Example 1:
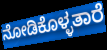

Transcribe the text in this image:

ನೋಡಿಕೊಳ್ಳತಾರೆ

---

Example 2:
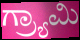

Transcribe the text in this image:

ಗ್ರ್ಯಾಮಿ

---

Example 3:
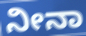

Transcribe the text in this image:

ನೀನಾ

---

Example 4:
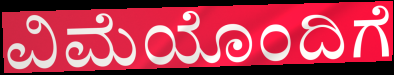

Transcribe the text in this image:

ವಿಮೆಯೊಂದಿಗೆ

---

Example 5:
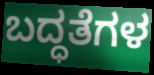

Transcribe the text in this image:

ಬದ್ಧತೆಗಳ